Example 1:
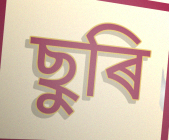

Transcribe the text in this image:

ছুৰি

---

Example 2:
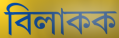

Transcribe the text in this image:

বিলাকক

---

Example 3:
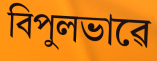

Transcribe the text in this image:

বিপুলভাৱে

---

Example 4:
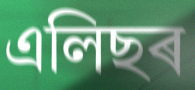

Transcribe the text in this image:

এলিছৰ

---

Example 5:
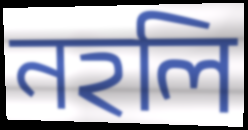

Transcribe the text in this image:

নহলি